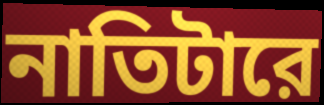
নাতিটারে